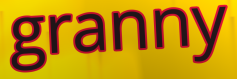
granny